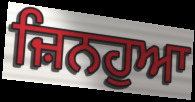
ਜ਼ਿਨਹੁਆ